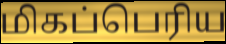
மிகப்பெரிய